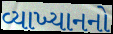
વ્યાખ્યાનનો